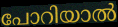
പോറിയാൽ